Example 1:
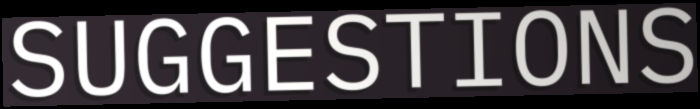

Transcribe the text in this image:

SUGGESTIONS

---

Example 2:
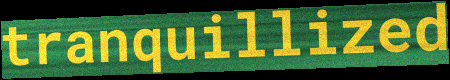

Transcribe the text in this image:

tranquillized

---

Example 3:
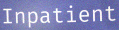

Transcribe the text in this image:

Inpatient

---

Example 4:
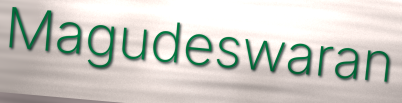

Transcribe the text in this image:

Magudeswaran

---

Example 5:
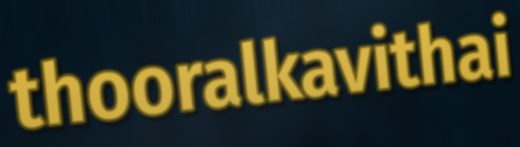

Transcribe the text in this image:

thooralkavithai